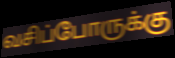
வசிப்போருக்கு